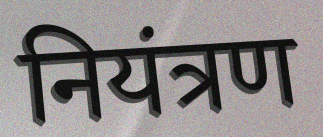
नियंत्रण